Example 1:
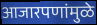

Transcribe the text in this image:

आजारपणांमुळे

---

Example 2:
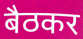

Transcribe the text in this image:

बैठकर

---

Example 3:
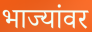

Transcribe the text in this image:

भाज्यांवर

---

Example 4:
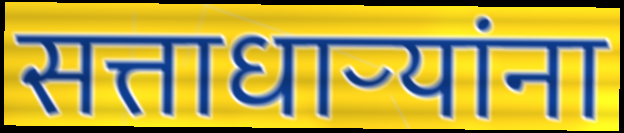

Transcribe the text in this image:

सत्ताधाऱ्यांना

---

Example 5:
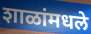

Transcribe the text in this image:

शाळांमधले